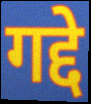
गद्दे